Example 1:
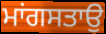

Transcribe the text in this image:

ਮਾਂਗਸਤਾਉ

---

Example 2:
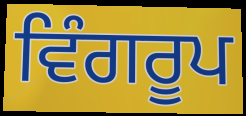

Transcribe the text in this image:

ਵਿੰਗਰੂਪ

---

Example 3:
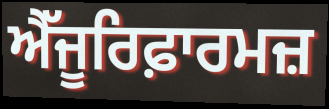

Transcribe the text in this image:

ਐੱਜੂਰਿਫ਼ਾਰਮਜ਼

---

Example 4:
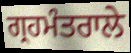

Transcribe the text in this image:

ਗ੍ਰਹਮੰਤਰਾਲੇ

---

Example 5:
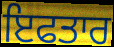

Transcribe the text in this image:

ਇਫਤਾਰ